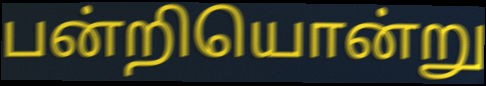
பன்றியொன்று